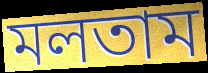
মলতাম